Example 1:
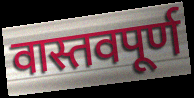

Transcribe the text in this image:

वास्तवपूर्ण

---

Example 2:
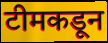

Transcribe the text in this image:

टीमकडून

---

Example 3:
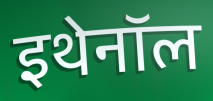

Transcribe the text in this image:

इथेनॉल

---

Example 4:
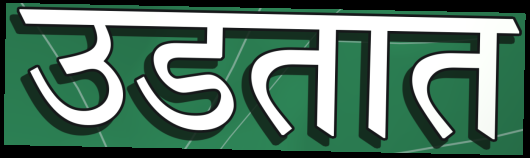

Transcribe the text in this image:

उडतात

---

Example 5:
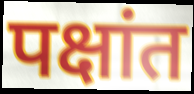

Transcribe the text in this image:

पक्षांत